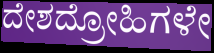
ದೇಶದ್ರೋಹಿಗಳೇ